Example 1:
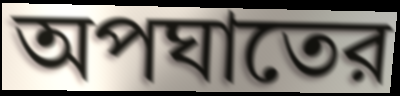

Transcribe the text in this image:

অপঘাতের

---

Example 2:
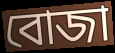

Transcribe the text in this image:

বোজা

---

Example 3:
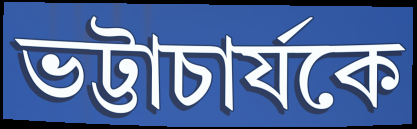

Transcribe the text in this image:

ভট্টাচার্যকে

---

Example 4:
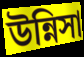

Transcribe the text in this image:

উন্নিসা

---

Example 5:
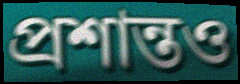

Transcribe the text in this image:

প্রশান্তও